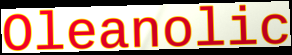
Oleanolic